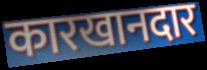
कारखानदार